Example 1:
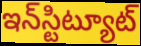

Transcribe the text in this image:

ఇన్‌స్టిట్యూట్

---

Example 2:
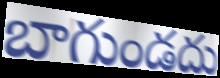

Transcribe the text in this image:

బాగుండదు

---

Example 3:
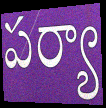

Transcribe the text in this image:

పర్యా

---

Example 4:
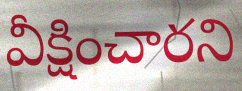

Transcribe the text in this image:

వీక్షించారని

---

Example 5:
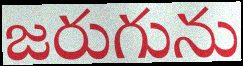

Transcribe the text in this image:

జరుగును